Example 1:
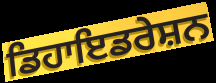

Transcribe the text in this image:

ਡਿਹਾਇਡਰੇਸ਼ਨ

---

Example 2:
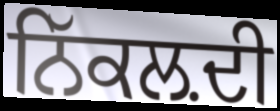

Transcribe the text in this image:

ਨਿੱਕਲ਼ਦੀ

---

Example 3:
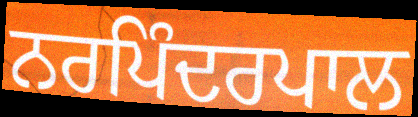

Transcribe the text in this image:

ਨਰਪਿੰਦਰਪਾਲ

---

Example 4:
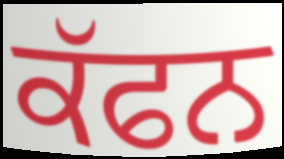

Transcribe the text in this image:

ਕੱਫਨ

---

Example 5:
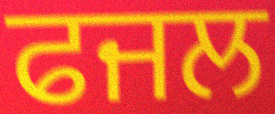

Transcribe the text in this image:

ਫਜਲ